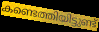
കണ്ടെത്തിയിട്ടുണ്ട്